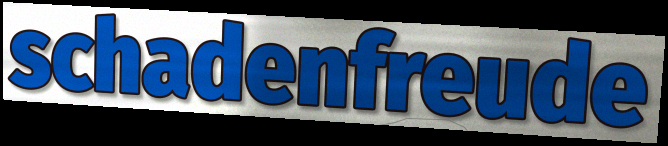
schadenfreude